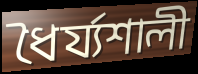
ধৈর্য্যশালী